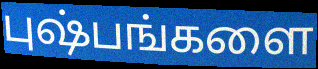
புஷ்பங்களை